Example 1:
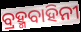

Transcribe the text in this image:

ବ୍ରହ୍ମବାହିନୀ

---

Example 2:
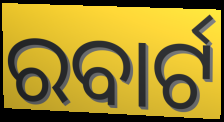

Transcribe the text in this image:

ରବାର୍ଟ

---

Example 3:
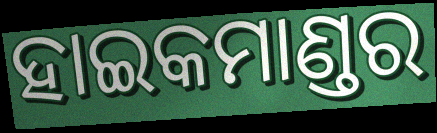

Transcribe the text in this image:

ହାଇକମାଣ୍ଡର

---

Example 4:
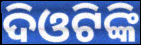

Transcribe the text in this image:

ଦିଓଟିଙ୍କି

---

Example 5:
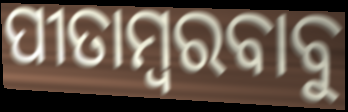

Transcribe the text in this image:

ପୀତାମ୍ବରବାବୁ